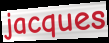
jacques